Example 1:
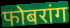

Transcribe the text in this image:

फोबरांग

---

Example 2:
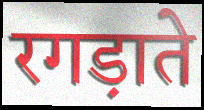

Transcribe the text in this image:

रगड़ाते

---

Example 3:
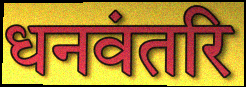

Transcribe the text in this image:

धनवंतरि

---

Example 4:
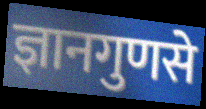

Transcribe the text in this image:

ज्ञानगुणसे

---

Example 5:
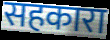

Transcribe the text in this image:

सहकारा